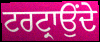
ਟਰਟ੍ਰਾਉਂਦੇ